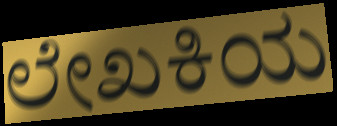
ಲೇಖಕಿಯ